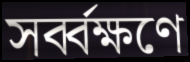
সর্ব্বক্ষণে